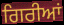
ਗਿਰੀਆਂ